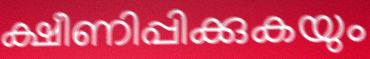
ക്ഷീണിപ്പിക്കുകയും